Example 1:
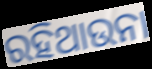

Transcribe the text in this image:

ରହିଥାଉନା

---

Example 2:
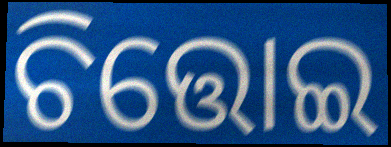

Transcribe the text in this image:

ଚିତ୍ତୋଇ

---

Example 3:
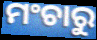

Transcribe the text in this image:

ମଂଚାରୁ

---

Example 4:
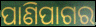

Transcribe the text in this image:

ପାଣିପାଗର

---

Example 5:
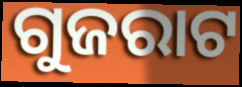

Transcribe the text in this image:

ଗୁଜରାଟ